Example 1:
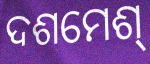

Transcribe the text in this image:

ଦଶମେଶ୍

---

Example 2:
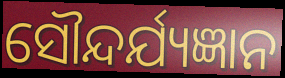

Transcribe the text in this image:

ସୌନ୍ଦର୍ଯ୍ୟଜ୍ଞାନ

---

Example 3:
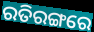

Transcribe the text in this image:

ରତିରଙ୍ଗରେ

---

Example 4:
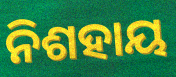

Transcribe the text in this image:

ନିଶହାୟ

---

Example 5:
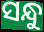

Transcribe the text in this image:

ସନ୍ଧୁ